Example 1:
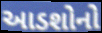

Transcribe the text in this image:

આડશોનો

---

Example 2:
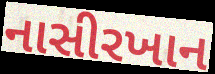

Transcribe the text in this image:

નાસીરખાન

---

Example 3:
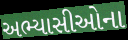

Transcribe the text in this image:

અભ્યાસીઓના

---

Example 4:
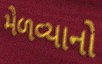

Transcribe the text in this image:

મેળવ્યાનો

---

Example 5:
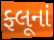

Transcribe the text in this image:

ફ્લૂનાં